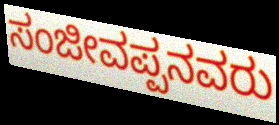
ಸಂಜೀವಪ್ಪನವರು